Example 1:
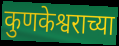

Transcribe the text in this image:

कुणकेश्वराच्या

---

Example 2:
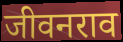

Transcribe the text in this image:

जीवनराव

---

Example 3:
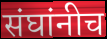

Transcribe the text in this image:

संघांनीच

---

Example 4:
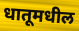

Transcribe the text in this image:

धातूमधील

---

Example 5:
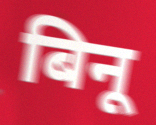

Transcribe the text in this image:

बिनू